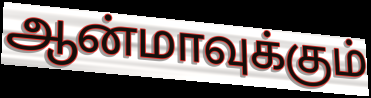
ஆன்மாவுக்கும்